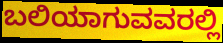
ಬಲಿಯಾಗುವವರಲ್ಲಿ